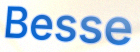
Besse